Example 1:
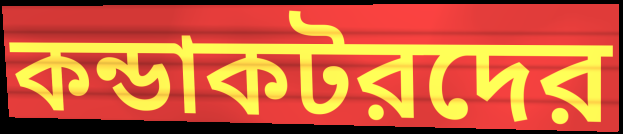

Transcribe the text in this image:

কন্ডাকটরদের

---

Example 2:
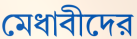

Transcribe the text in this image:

মেধাবীদের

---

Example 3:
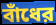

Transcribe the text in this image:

বাঁধের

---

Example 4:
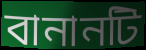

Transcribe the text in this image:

বানানটি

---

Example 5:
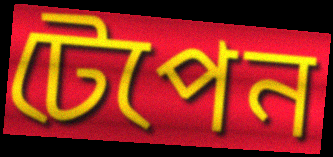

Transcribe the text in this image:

টেপেন